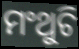
ମଂଥୁଚି